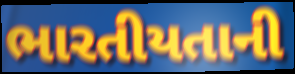
ભારતીયતાની